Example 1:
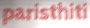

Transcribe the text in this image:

paristhiti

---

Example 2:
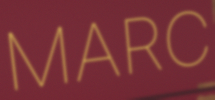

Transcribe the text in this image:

MARC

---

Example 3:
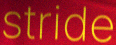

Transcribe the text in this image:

stride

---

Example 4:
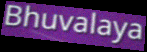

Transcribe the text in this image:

Bhuvalaya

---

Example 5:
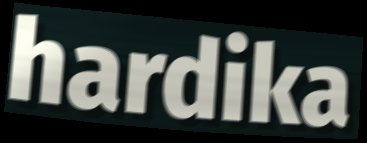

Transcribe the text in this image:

hardika